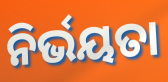
ନିର୍ଭୟତା